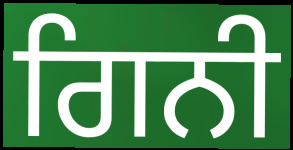
ਗਿਨੀ